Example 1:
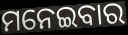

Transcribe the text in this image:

ମନେଇବାର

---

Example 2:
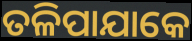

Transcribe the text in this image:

ତଳିପାଯାକେ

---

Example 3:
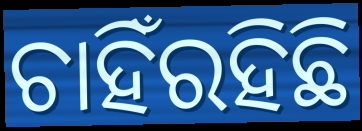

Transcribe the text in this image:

ଚାହିଁରହିଛି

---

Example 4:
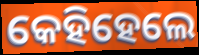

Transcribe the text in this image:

କେହିହେଲେ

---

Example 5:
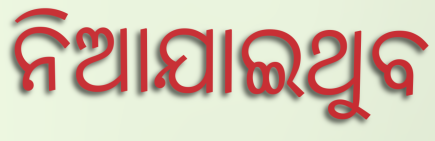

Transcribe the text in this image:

ନିଆଯାଇଥୁବ